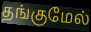
தங்குமேல்